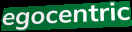
egocentric